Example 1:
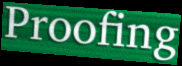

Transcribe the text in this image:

Proofing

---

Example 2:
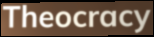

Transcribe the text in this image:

Theocracy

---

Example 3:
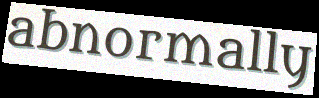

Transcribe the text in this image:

abnormally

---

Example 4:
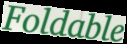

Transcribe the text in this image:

Foldable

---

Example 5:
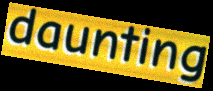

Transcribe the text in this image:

daunting